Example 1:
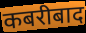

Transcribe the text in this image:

कबरीबाद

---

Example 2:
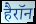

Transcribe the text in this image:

हैरॉन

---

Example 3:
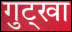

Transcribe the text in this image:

गुट्खा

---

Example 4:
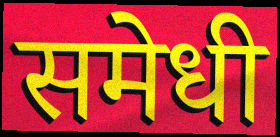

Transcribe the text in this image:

समेधी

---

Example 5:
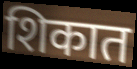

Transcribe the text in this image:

शिकात